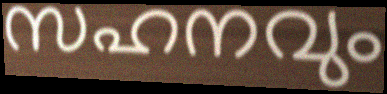
സഹനവും